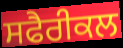
ਸਫੈਰੀਕਲ